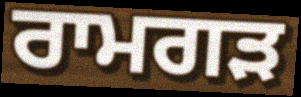
ਰਾਮਗੜ